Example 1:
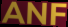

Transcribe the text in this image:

ANF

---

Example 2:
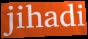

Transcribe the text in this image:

jihadi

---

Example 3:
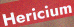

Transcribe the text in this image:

Hericium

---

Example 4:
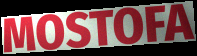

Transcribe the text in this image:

MOSTOFA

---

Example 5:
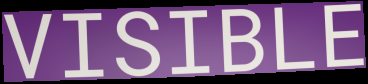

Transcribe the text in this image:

VISIBLE